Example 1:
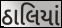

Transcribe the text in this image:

ઠાલિયાં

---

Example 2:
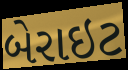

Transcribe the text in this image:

બેરાઇટ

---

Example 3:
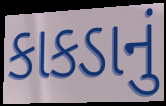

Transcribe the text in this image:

કાકડાનું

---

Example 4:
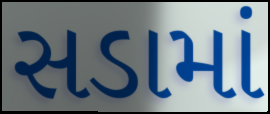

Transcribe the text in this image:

સડામાં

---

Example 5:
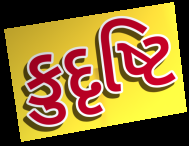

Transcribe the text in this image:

કુદૃષ્ટિ